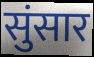
सुंसार